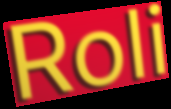
Roli